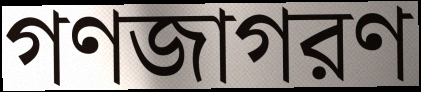
গণজাগরণ